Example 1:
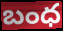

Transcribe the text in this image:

బంధ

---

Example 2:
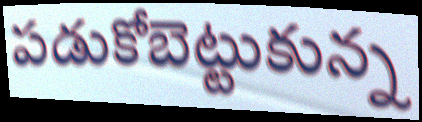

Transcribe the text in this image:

పడుకోబెట్టుకున్న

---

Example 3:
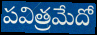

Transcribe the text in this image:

పవిత్రమేదో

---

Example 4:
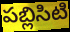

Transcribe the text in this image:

పబ్లిసిటి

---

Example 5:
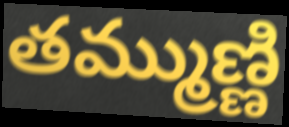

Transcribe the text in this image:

తమ్ముణ్ణి